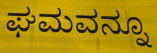
ಘಮವನ್ನೂ